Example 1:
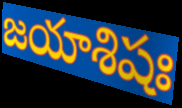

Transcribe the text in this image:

జయాశిషః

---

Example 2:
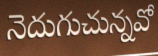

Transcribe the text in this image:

నెదుగుచున్నవో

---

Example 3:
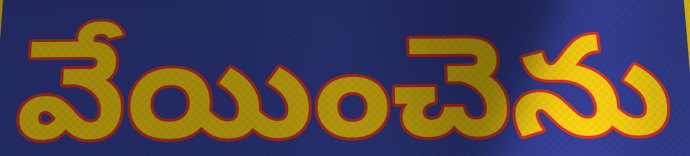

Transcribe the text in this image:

వేయించెను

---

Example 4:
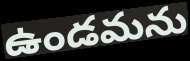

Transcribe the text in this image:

ఉండమను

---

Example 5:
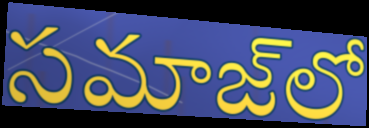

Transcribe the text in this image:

సమాజ్‌లో